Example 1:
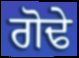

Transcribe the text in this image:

ਗੋਢੇ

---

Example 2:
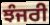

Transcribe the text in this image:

ਝੰਜਰੀ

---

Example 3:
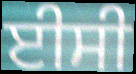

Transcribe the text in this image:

ਈਸੀ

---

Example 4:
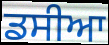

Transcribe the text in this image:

ਡਸੀਆ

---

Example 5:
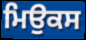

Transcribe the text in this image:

ਮਿਉਕਸ